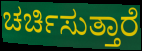
ಚರ್ಚಿಸುತ್ತಾರೆ